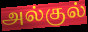
அல்குல்